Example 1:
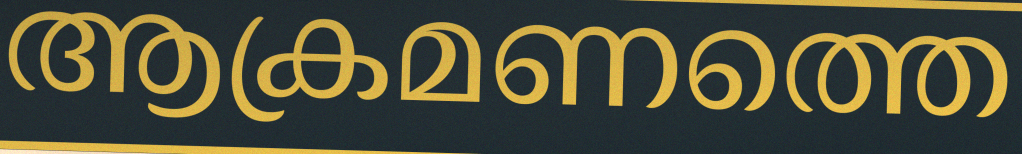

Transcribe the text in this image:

ആക്രമണത്തെ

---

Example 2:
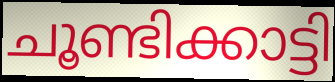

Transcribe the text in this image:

ചൂണ്ടിക്കാട്ടി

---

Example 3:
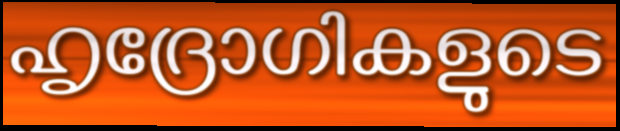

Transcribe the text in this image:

ഹൃദ്രോഗികളുടെ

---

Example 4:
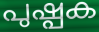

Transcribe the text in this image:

പുഷ്പക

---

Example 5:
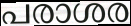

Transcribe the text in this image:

പരാശര